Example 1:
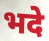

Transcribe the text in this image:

भदे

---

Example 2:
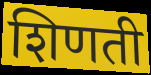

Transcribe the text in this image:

शिणती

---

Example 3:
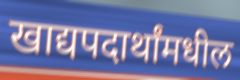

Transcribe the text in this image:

खाद्यपदार्थांमधील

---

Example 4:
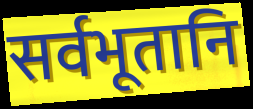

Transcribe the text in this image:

सर्वभूतानि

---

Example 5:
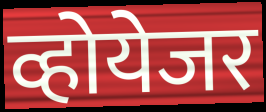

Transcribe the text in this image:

व्होयेजर